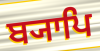
ਬ੍ਯਾਪਿ